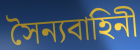
সৈন্যবাহিনী